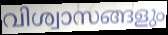
വിശ്വാസങ്ങളും